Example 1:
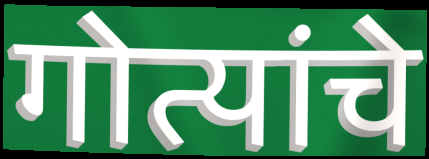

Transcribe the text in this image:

गोत्यांचे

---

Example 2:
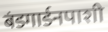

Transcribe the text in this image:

बंडगार्डनपाशी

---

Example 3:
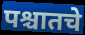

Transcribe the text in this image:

पश्चातचे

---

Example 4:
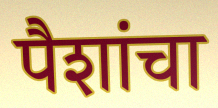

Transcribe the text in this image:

पैशांचा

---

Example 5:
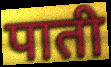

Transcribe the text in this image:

पाती